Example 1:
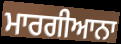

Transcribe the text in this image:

ਮਾਰਗੀਆਨਾ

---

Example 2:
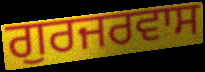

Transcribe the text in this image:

ਗੁਰਜਰਵਾਸ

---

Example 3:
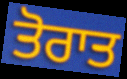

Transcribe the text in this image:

ਤੋਰਾਤ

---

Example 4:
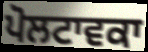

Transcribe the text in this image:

ਪੋਲਟਾਵਕਾ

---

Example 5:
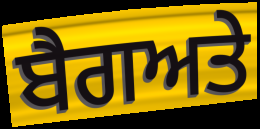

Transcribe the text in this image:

ਬੈਗਅਤੇ